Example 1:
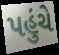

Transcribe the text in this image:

પહુંચે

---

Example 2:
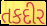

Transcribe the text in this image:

તકદીર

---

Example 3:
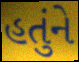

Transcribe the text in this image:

હતુંને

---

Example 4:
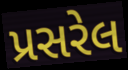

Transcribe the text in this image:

પ્રસરેલ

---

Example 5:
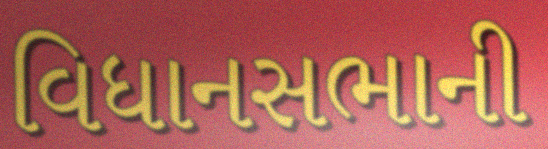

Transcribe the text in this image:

વિધાનસભાની